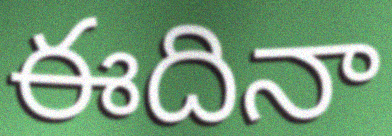
ఈదినా